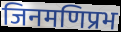
जिनमणिप्रभ